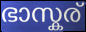
ഭാസ്കര്